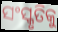
ସଂସ୍କୃତିକୁ